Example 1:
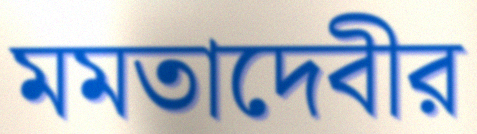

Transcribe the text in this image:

মমতাদেবীর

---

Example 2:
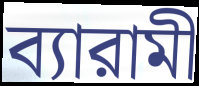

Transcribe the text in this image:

ব্যারামী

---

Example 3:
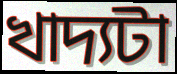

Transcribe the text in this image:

খাদ্যটা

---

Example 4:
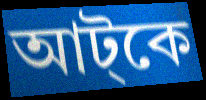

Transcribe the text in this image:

আট্কে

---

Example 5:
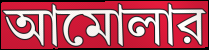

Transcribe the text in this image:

আমোলার